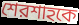
শেরশাহকে